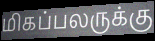
மிகப்பலருக்கு